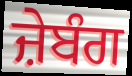
ਜ਼ੇਬੰਗ